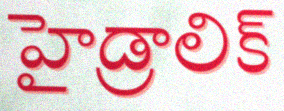
హైడ్రాలిక్